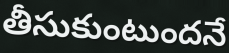
తీసుకుంటుందనే